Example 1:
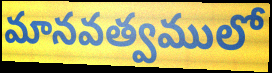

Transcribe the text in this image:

మానవత్వములో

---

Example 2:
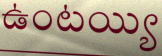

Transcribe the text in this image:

ఉంటయ్యి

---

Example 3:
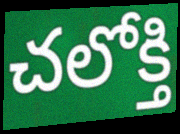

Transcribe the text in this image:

చలోక్తి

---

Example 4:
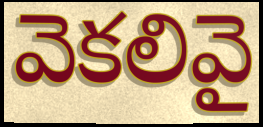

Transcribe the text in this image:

వెకలివై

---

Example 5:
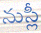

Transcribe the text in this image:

నుస్లీ